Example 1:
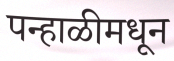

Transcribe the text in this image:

पन्हाळीमधून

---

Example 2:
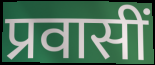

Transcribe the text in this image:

प्रवासीं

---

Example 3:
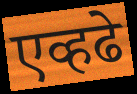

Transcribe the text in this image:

एव्हढे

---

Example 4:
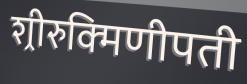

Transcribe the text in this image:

श्रीरुक्मिणीपती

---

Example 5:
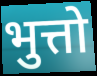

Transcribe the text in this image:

भुत्तो